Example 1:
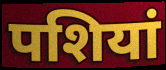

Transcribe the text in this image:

पशियां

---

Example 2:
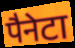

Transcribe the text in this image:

पैनेटा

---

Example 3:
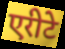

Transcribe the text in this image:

एरीटे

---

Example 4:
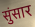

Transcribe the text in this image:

सुंसार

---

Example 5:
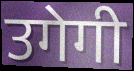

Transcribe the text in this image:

उगेगी